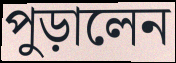
পুড়ালেন